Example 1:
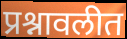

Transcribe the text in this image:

प्रश्नावलीत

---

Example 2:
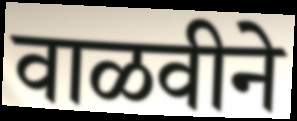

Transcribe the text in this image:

वाळवीने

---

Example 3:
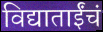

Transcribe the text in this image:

विद्याताईंचं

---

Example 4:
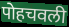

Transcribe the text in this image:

पोहचवली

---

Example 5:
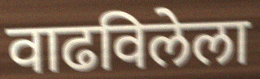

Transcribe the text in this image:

वाढविलेला